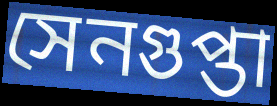
সেনগুপ্তা